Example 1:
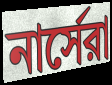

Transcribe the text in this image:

নার্সেরা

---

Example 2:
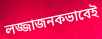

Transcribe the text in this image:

লজ্জাজনকভাবেই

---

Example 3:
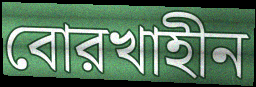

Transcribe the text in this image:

বোরখাহীন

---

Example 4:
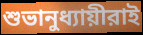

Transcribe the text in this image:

শুভানুধ্যায়ীরাই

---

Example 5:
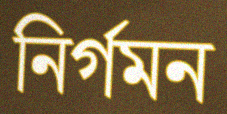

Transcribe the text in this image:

নির্গমন